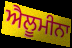
ਐਲੂਮੀਨਾ